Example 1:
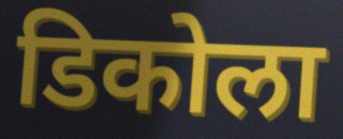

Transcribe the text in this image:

डिकोला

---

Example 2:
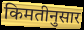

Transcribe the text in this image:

किमतीनुसार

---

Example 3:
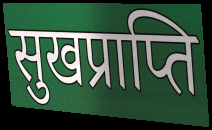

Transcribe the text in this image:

सुखप्राप्ति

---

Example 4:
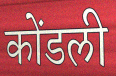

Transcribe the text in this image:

कोंडली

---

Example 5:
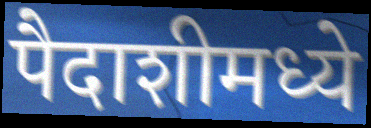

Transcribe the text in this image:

पैदाशीमध्ये